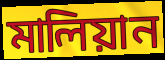
মালিয়ান